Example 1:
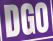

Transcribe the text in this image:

DGO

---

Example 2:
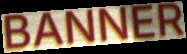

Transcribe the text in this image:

BANNER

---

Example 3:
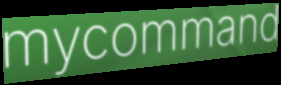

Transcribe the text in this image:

mycommand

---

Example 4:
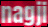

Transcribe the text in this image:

nagji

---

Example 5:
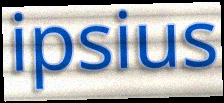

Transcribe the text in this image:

ipsius